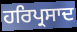
ਹਰਿਪ੍ਰਸਾਦ